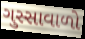
ગુસ્સાવાળો